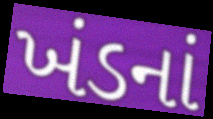
ખંડનાં